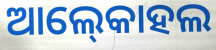
ଆଲ୍‍କୋହଲ